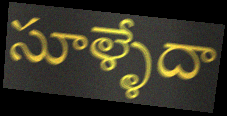
సూళ్ళేదా